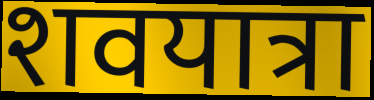
शवयात्रा